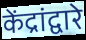
केंद्रांद्वारे